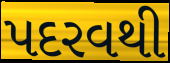
પદરવથી